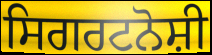
ਸਿਗਰਟਨੋਸ਼ੀ